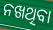
ନଖଥିବା